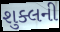
શુક્લની